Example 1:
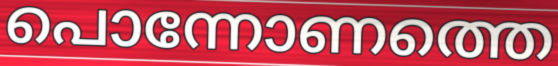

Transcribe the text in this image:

പൊന്നോണത്തെ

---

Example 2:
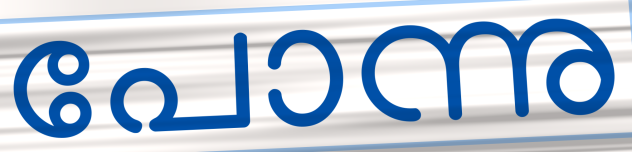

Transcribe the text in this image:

പോന്നു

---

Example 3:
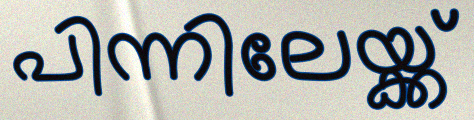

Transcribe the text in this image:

പിന്നിലേയ്ക്ക്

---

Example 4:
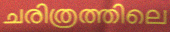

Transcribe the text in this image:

ചരിത്രത്തിലെ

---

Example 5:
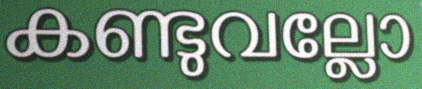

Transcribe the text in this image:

കണ്ടുവല്ലോ